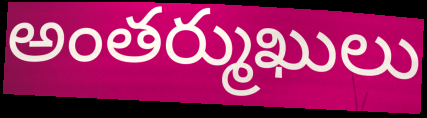
అంతర్ముఖులు